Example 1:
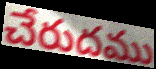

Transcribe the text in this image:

చేరుదము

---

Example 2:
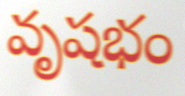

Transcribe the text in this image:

వృషభం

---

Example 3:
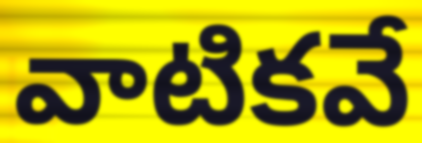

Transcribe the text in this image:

వాటికవే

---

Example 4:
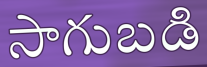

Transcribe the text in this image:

సాగుబడి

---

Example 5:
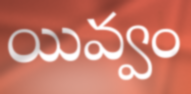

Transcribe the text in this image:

యివ్వం